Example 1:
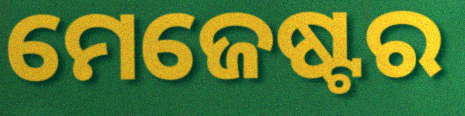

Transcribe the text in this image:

ମେଜେଷ୍ଟର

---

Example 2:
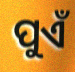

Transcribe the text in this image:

ପୁଏଁ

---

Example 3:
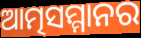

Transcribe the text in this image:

ଆତ୍ମସମ୍ମାନର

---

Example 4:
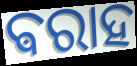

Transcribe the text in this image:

ଵରାହ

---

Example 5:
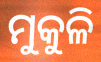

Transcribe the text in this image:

ମୁକୁଳି